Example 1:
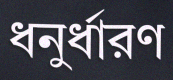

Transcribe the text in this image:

ধনুর্ধারণ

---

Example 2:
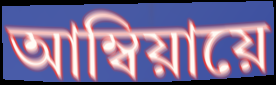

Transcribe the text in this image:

আম্বিয়ায়ে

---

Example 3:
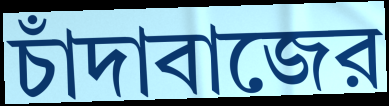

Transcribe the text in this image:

চাঁদাবাজের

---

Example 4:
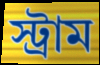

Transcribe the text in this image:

স্ট্রাম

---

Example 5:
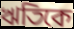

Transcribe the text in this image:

ঋতিকে